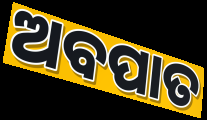
ଅବପାତ